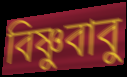
বিষ্ণুবাবু